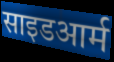
साइडआर्म